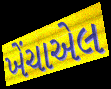
ખેંચાએલ